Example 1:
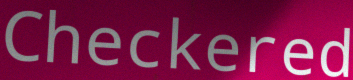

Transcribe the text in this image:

Checkered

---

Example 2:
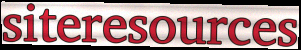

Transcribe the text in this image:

siteresources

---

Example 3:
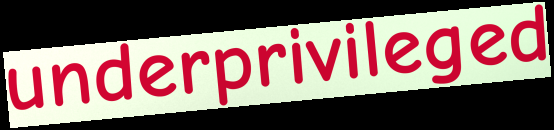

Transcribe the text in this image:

underprivileged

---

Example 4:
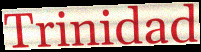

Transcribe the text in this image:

Trinidad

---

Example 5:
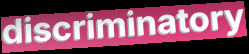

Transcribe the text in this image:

discriminatory